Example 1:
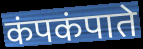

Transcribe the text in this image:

कंपकंपाते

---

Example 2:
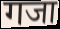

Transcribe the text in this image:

गजा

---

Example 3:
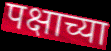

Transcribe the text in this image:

पक्षाच्या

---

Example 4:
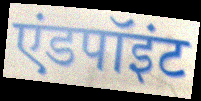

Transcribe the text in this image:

एंडपॉइंट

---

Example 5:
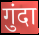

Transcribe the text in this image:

गुंदा